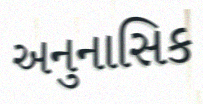
અનુનાસિક